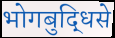
भोगबुद्धिसे